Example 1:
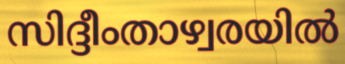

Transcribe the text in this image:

സിദ്ദീംതാഴ്വരയിൽ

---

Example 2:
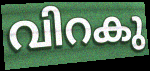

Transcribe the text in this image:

വിറകു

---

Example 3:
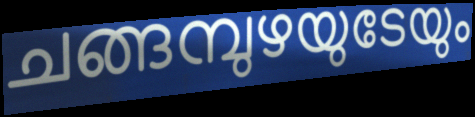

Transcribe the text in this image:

ചങ്ങമ്പുഴയുടേയും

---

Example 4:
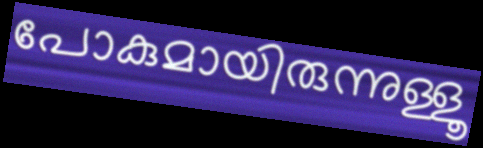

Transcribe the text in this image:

പോകുമായിരുന്നുള്ളൂ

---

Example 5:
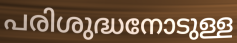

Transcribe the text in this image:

പരിശുദ്ധനോടുള്ള